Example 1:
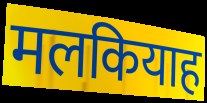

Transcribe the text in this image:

मलकियाह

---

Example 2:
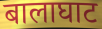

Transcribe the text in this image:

बालाघाट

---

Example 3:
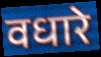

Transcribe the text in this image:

वधारे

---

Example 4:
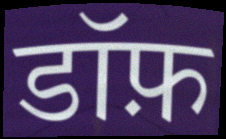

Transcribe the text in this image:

डॉफ़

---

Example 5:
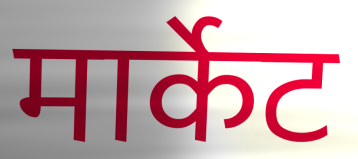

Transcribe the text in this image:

मार्केट